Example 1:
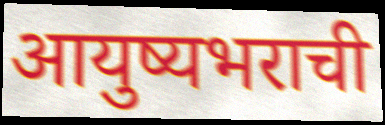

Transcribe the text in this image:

आयुष्यभराची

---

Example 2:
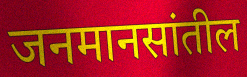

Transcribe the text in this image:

जनमानसांतील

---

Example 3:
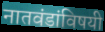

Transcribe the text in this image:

नातवंडांविषयी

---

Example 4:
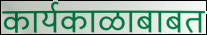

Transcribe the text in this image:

कार्यकाळाबाबत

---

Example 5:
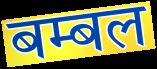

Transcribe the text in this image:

बम्बल